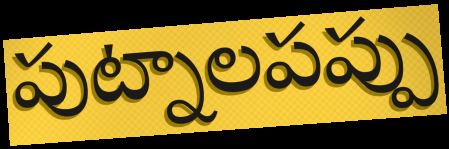
పుట్నాలపప్పు